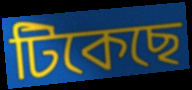
টিকেছে